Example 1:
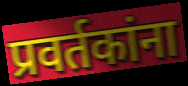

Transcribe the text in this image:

प्रवर्तकांना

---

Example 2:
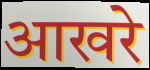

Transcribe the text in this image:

आखरे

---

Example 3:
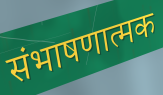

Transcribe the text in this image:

संभाषणात्मक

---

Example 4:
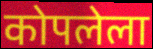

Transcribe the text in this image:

कोपलेला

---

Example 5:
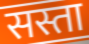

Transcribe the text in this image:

सस्ता